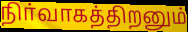
நிர்வாகத்திறனும்